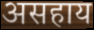
असहाय